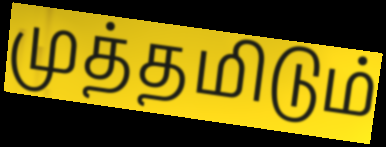
முத்தமிடும்